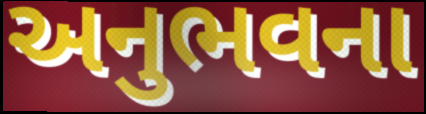
અનુભવના